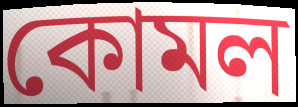
কোমল